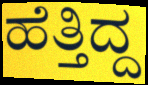
ಹೆತ್ತಿದ್ದ